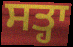
ਸਤ੍ਹਾ